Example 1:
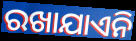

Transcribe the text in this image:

ରଖାଯାଏନି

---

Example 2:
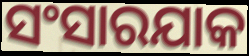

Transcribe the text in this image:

ସଂସାରଯାକ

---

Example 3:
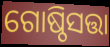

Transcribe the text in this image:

ଗୋଷ୍ଠିସତ୍ତା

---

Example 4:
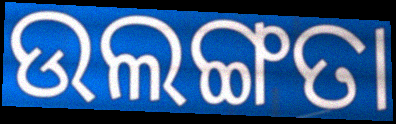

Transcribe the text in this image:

ଉଲଙ୍ଗତା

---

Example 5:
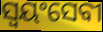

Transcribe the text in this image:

ସ୍ୱୟଂସେବୀ